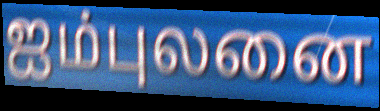
ஐம்புலனை